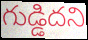
గుడ్డిదని